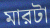
মারটা